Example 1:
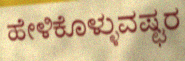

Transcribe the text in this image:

ಹೇಳಿಕೊಳ್ಳುವಷ್ಟರ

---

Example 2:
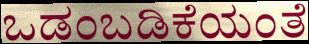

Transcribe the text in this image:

ಒಡಂಬಡಿಕೆಯಂತೆ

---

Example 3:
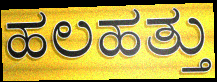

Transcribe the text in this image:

ಹಲಹತ್ತು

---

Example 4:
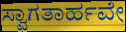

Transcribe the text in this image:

ಸ್ವಾಗತಾರ್ಹವೇ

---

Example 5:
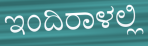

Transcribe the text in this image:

ಇಂದಿರಾಳಲ್ಲಿ